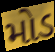
મોડ